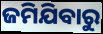
ଜମିଯିବାରୁ